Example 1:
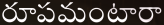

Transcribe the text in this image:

రూపమంటారా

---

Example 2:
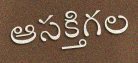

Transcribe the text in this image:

ఆసక్తిగల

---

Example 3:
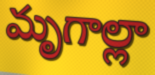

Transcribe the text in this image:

మృగాల్లా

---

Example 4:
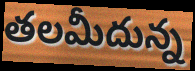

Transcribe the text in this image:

తలమీదున్న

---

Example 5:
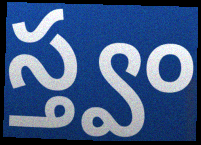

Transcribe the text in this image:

స్త్వం